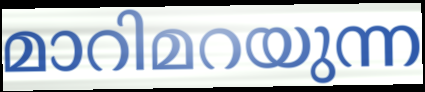
മാറിമറയുന്ന